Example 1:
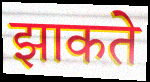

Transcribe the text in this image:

झाकते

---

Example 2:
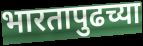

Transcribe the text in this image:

भारतापुढच्या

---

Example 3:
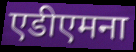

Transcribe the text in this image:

एडीएमना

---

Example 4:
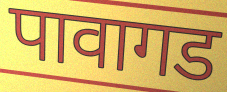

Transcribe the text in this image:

पावागड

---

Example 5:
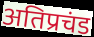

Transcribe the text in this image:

अतिप्रचंड